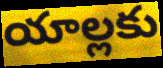
యాల్లకు